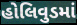
હોલિવુડમાં